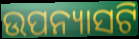
ଉପନ୍ୟାସଟି